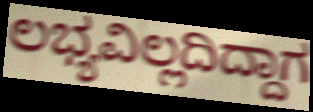
ಲಭ್ಯವಿಲ್ಲದಿದ್ದಾಗ